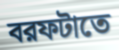
বরফটাতে